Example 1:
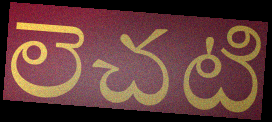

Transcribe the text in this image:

లెచటి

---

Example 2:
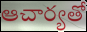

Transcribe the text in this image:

ఆచార్యతో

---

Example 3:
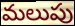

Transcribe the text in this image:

మలుపు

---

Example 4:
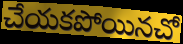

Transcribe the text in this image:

చేయకపోయినచో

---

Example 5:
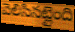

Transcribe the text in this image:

వెలిసినట్లైంది